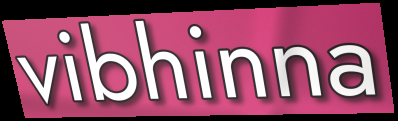
vibhinna